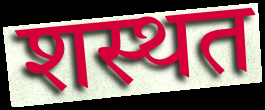
शस्थत